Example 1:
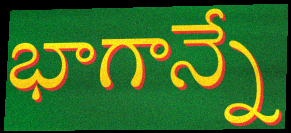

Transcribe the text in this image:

భాగాన్నే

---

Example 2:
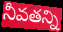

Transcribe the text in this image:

నీవతన్ని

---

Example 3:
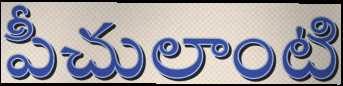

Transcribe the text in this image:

పీచులాంటి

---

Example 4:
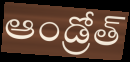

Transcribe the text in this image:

ఆండ్రోత్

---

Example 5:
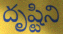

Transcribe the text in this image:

దృష్టిని